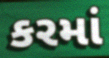
કરમાં